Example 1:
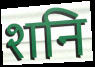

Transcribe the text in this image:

शनि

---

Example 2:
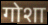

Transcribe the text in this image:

गोशा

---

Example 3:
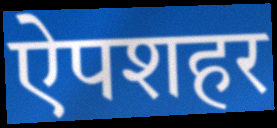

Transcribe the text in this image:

ऐपशहर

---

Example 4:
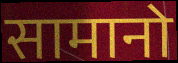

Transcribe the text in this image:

सामानो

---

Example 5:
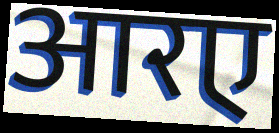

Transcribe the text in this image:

आरए